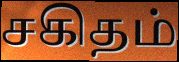
சகிதம்